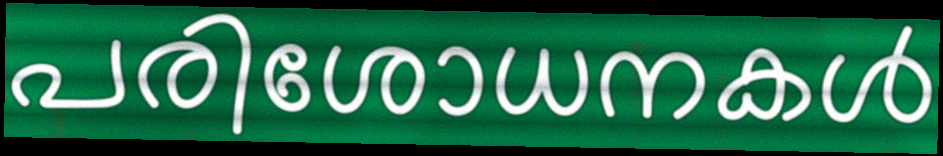
പരിശോധനകൾ